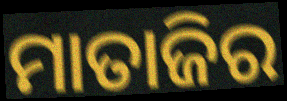
ମାତାଜିର